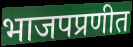
भाजपप्रणीत